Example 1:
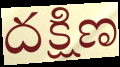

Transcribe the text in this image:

దక్షిణ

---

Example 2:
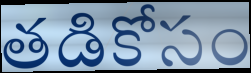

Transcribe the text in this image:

తడికోసం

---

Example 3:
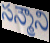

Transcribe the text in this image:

సన్మౌని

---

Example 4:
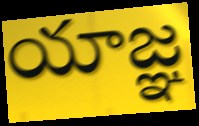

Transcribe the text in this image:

యాజ్ఞ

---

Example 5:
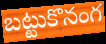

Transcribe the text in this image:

బట్టుకొనంగ